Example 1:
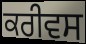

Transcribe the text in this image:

ਕਰੀਵਸ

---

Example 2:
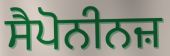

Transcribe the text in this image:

ਸੈਪੋਨੀਨਜ਼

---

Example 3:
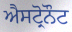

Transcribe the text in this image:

ਐਸਟ੍ਰੋਨੌਟ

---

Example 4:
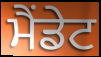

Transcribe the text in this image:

ਮੈਂਡੇਟ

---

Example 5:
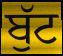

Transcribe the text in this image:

ਬੁੱਟ